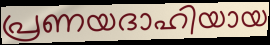
പ്രണയദാഹിയായ